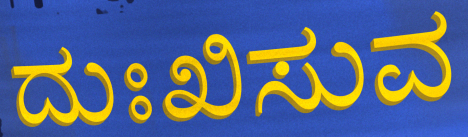
ದುಃಖಿಸುವ